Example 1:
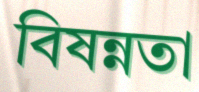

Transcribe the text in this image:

বিষন্নতা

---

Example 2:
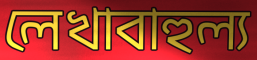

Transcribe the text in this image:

লেখাবাহুল্য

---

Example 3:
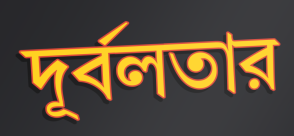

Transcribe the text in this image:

দূর্বলতার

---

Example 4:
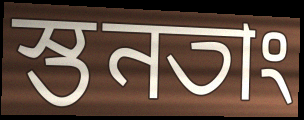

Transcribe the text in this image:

স্তনতাং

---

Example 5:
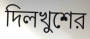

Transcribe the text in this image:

দিলখুশের